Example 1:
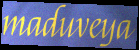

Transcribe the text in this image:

maduveya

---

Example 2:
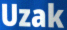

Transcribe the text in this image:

Uzak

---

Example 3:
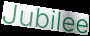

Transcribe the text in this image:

Jubilee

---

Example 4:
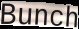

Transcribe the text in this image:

Bunch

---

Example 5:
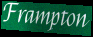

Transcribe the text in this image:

Frampton